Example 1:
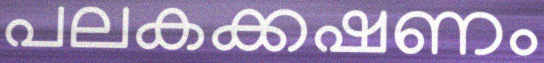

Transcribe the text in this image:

പലകക്കഷണം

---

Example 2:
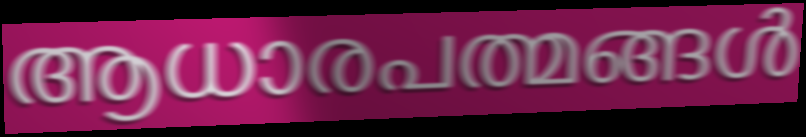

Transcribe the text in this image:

ആധാരപത്മങ്ങൾ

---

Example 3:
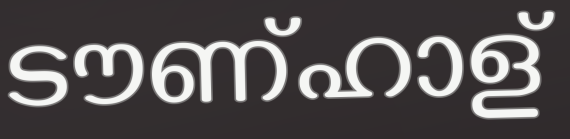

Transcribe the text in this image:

ടൗണ്ഹാള്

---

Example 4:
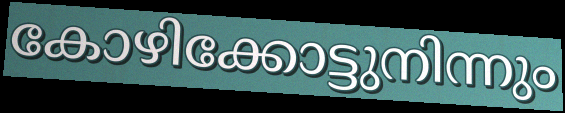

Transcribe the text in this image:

കോഴിക്കോട്ടുനിന്നും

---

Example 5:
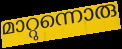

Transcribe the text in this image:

മാറ്റുന്നൊരു